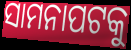
ସାମନାପଟକୁ